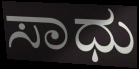
ಸಾಧು